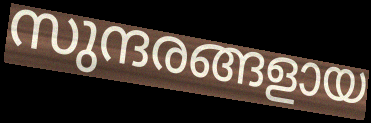
സുന്ദരങ്ങളായ